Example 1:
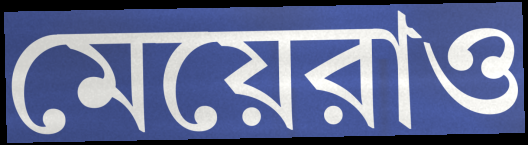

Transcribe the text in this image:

মেয়েরাও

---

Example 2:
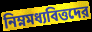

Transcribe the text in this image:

নিম্নমধ্যবিত্তদের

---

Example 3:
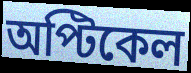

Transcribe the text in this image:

অপ্টিকেল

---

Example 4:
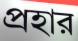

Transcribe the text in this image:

প্রহার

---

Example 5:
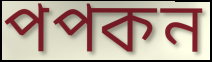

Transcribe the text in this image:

পপকন